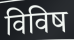
विविष